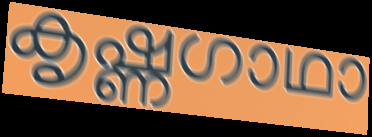
കൃഷ്ണഗാഥാ